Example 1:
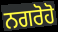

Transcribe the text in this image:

ਨਗਰੋਹੋ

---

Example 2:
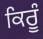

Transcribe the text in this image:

ਕਿਰੂੰ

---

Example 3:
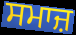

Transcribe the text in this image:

ਸਮਾਜ਼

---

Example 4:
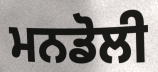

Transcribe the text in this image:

ਮਨਡੋਲੀ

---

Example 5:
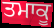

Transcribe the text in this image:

ਤਮਾਕੂ